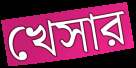
খেসার